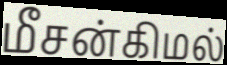
மீசன்கிமல்